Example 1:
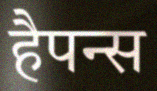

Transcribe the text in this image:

हैपन्स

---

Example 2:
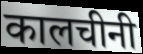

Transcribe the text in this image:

कालचीनी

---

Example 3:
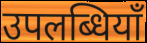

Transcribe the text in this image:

उपलब्धियाँ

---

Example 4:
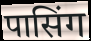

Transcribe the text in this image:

पासिंग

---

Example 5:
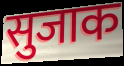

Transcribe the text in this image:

सुजाक